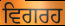
ਵਿਗਰਹ